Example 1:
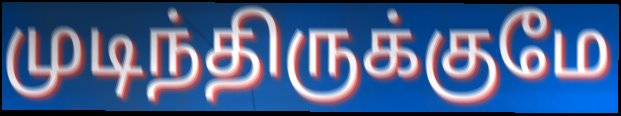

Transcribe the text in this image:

முடிந்திருக்குமே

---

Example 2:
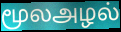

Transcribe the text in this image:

மூலஅழல்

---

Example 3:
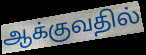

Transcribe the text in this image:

ஆக்குவதில்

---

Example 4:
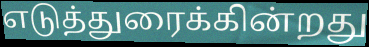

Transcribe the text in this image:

எடுத்துரைக்கின்றது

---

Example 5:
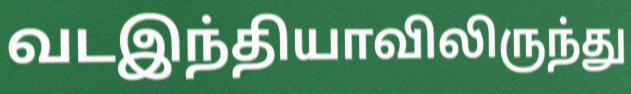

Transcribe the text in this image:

வடஇந்தியாவிலிருந்து